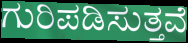
ಗುರಿಪಡಿಸುತ್ತವೆ